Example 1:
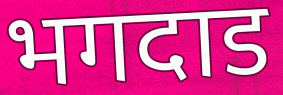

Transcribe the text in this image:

भगदाड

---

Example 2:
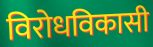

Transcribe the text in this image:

विरोधविकासी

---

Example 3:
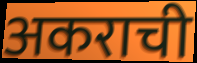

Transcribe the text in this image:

अकराची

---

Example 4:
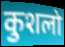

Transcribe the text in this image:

कुशलो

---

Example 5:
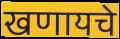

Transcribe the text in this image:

खणायचे